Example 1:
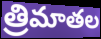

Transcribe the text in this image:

త్రిమాతల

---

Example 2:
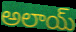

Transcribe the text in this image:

అలాయ్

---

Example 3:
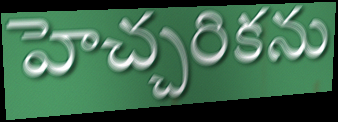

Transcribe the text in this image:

హెచ్చరికను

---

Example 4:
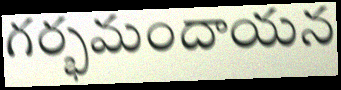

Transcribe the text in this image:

గర్భమందాయన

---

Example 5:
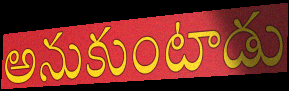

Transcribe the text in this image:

అనుకుంటాడు